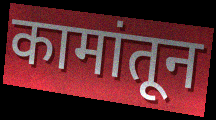
कामांतून